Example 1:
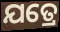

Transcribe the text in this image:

ଯତ୍ରେ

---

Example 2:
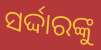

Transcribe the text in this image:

ସର୍ଦ୍ଦାରଙ୍କୁ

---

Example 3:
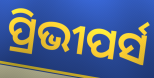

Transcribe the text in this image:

ପ୍ରିଭୀପର୍ସ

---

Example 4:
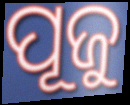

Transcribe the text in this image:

ପୂଜୁ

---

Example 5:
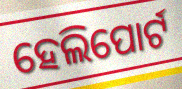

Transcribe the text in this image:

ହେଲିପୋର୍ଟ